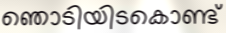
ഞൊടിയിടകൊണ്ട്